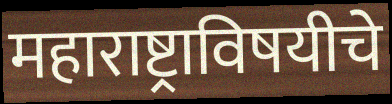
महाराष्ट्राविषयीचे